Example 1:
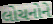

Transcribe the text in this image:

લોચનોને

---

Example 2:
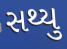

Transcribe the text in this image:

સથ્યુ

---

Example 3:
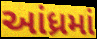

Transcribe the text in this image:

આંધ્રમાં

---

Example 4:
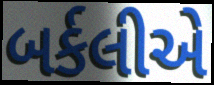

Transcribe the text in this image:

બર્કલીએ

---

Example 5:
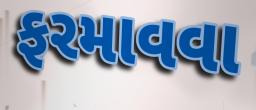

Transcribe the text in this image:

ફરમાવવા